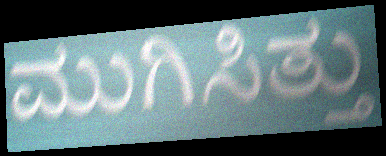
ಮುಗಿಸಿತ್ತು